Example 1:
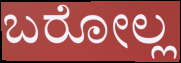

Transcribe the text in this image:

ಬರೋಲ್ಲ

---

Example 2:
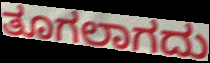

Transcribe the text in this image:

ತೂಗಲಾಗದು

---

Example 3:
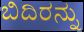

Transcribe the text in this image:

ಬಿದಿರನ್ನು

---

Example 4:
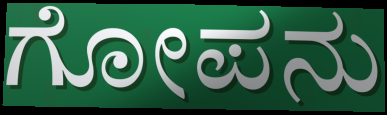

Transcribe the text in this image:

ಗೋಪನು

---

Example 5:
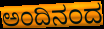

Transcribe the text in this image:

ಅಂದಿನಂದ